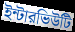
ইন্টারভিউটি